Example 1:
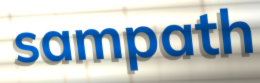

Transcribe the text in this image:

sampath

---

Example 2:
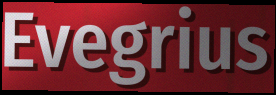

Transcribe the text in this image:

Evegrius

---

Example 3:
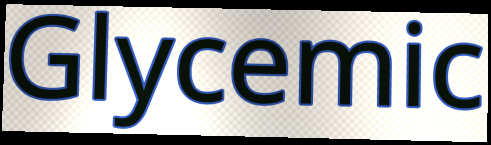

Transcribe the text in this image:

Glycemic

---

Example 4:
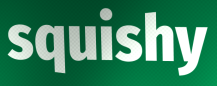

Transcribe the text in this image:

squishy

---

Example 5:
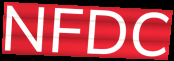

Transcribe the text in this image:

NFDC